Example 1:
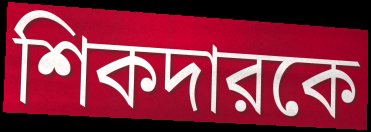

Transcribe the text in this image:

শিকদারকে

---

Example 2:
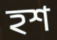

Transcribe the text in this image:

হশ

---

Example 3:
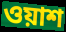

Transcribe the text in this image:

ওয়াশ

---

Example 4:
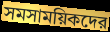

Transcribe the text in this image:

সমসাময়িকদের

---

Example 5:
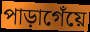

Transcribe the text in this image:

পাড়াগেঁয়ে